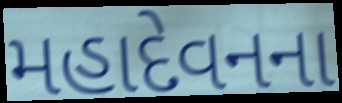
મહાદેવનના